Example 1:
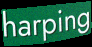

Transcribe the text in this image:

harping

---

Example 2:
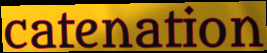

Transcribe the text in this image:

catenation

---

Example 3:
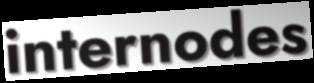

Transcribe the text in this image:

internodes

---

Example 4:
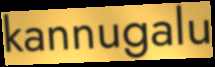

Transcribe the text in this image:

kannugalu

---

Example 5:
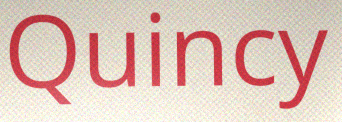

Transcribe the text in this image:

Quincy